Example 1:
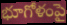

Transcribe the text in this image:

భూగోళంపై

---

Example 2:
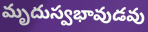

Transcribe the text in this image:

మృదుస్వభావుడవు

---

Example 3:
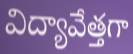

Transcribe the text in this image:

విద్యావేత్తగా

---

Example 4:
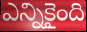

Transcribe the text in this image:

ఎన్నికైంది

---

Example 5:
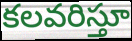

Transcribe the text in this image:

కలవరిస్తూ